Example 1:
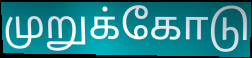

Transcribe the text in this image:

முறுக்கோடு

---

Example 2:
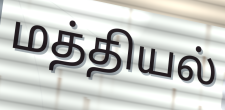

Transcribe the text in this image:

மத்தியல்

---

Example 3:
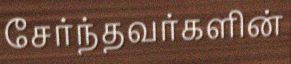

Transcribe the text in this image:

சேர்ந்தவர்களின்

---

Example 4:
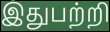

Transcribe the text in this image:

இதுபற்றி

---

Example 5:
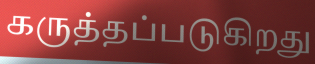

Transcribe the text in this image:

கருத்தப்படுகிறது